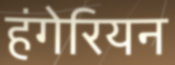
हंगेरियन